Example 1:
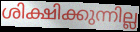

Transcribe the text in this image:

ശിക്ഷിക്കുന്നില്ല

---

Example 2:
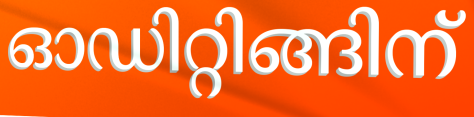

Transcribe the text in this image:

ഓഡിറ്റിങ്ങിന്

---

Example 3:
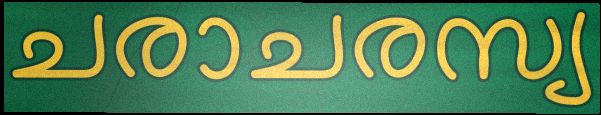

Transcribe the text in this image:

ചരാചരസ്യ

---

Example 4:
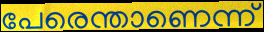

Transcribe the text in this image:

പേരെന്താണെന്ന്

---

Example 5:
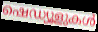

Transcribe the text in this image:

ഷെഡ്യൂളുകൾ